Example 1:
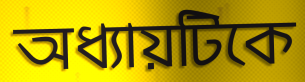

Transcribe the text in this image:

অধ্যায়টিকে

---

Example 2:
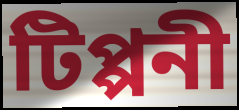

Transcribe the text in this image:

টিপ্পনী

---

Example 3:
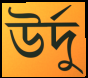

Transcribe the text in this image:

উর্দু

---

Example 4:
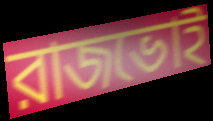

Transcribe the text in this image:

রাজভোই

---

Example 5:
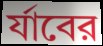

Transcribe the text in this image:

র্যাবের